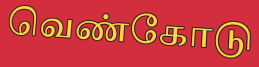
வெண்கோடு